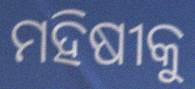
ମହିଷୀକୁ